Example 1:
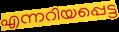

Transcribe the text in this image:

എന്നറിയപ്പെട്ട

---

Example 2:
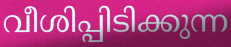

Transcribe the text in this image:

വീശിപ്പിടിക്കുന്ന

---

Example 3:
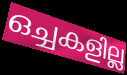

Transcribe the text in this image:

ഒച്ചകളില്ല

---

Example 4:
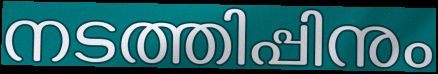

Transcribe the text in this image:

നടത്തിപ്പിനും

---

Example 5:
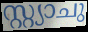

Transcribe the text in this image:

സ്റ്റ്യാചു